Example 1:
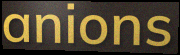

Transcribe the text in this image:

anions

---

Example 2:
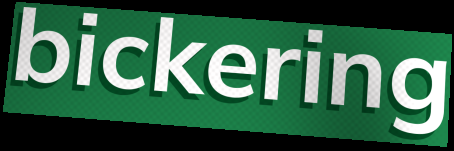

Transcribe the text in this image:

bickering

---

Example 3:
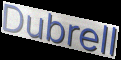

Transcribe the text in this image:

Dubrell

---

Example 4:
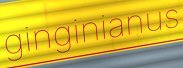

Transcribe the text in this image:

ginginianus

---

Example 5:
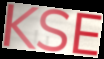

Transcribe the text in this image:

KSE